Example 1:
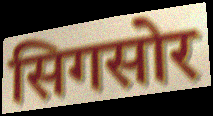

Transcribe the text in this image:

सिगसोर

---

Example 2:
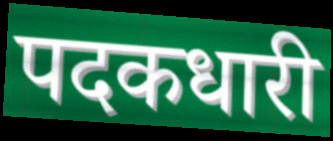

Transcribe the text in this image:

पदकधारी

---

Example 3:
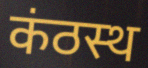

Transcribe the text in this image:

कंठस्थ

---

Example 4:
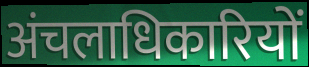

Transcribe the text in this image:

अंचलाधिकारियों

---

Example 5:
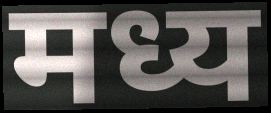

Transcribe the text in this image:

मध्य